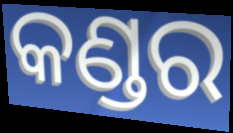
କଣ୍ଡର